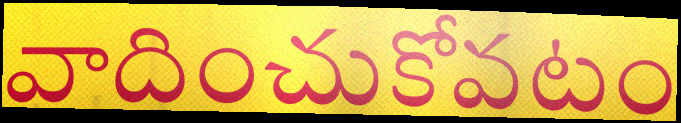
వాదించుకోవటం